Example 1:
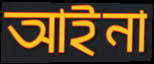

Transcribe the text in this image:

আইনা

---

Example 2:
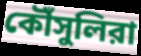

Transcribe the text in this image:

কৌঁসুলিরা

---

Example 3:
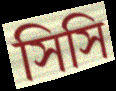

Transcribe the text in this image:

সিসি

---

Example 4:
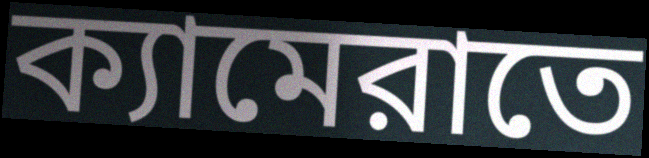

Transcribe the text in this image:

ক্যামেরাতে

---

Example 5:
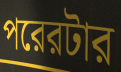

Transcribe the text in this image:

পরেরটার